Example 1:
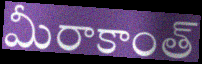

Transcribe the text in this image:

మీరాకాంత్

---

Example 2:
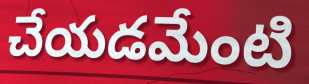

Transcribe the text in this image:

చేయడమేంటి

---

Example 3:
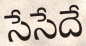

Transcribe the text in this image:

సేసేదే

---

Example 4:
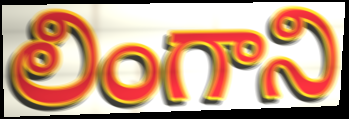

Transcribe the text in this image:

లింగాని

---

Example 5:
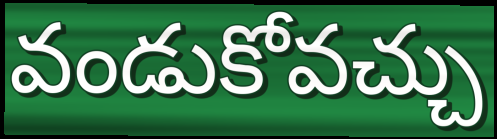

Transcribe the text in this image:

వండుకోవచ్చు